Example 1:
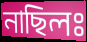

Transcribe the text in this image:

নাছিলঃ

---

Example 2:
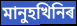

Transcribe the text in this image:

মানুহখিনিৰ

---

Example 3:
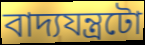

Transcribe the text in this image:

বাদ্যযন্ত্ৰটো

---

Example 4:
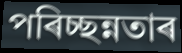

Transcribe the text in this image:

পৰিচ্ছন্নতাৰ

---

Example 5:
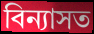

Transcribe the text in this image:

বিন্যাসত